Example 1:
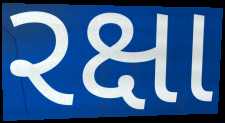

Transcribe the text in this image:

રક્ષા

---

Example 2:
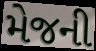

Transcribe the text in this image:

મેજની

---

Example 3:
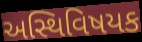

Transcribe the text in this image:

અસ્થિવિષયક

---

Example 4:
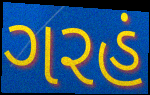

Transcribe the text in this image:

ગરહં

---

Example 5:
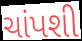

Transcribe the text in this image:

ચાંપશી